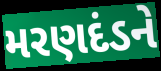
મરણદંડને